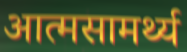
आत्मसामर्थ्य